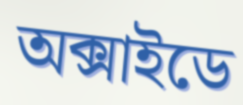
অক্সাইডে